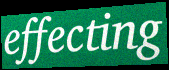
effecting